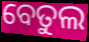
ବେତୁଲ